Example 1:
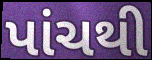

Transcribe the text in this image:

પાંચથી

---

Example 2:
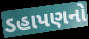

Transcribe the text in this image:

ડહાપણનો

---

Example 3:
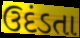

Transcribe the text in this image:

ઉદંડતા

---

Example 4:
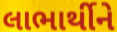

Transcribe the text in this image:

લાભાર્થીને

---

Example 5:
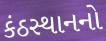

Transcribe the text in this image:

કંઠસ્થાનનો